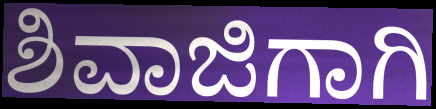
ಶಿವಾಜಿಗಾಗಿ